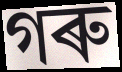
গৰু